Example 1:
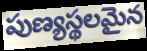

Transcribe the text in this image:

పుణ్యస్థలమైన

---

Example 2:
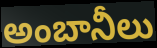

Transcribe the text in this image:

అంబానీలు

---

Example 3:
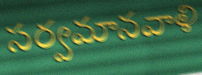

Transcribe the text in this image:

సర్వమానవాళి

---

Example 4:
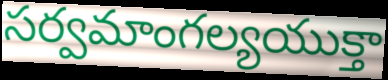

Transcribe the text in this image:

సర్వమాంగల్యయుక్తా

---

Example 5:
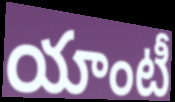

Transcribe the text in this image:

యాంటీ